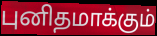
புனிதமாக்கும்